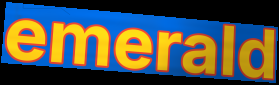
emerald